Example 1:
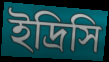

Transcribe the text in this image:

ইদ্রিসি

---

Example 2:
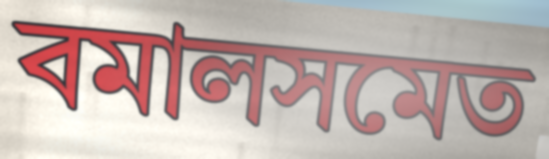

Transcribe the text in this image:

বমালসমেত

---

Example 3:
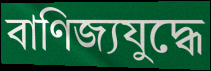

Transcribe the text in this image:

বাণিজ্যযুদ্ধে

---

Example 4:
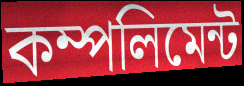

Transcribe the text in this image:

কম্পলিমেন্ট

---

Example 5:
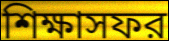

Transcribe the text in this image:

শিক্ষাসফর